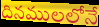
దినములలోనే